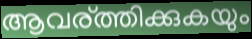
ആവര്ത്തിക്കുകയും